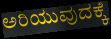
ಅರಿಯುವುದಕ್ಕೆ